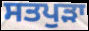
ਸਤਪੁੜਾ